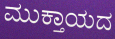
ಮುಕ್ತಾಯದ